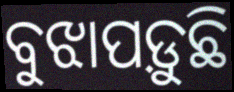
ବୁଝାପଡ଼ୁଛି